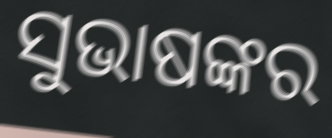
ସୁଭାଷଙ୍କର